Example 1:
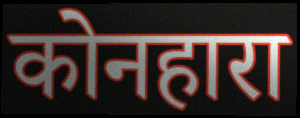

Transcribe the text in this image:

कोनहारा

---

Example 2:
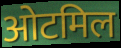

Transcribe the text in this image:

ओटमिल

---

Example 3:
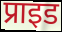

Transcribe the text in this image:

प्राइड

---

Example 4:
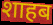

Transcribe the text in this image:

शाहब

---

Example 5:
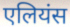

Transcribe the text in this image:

एलियंस